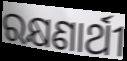
ରକ୍ଷଣାର୍ଥୀ